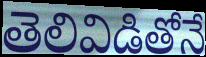
తెలివిడితోనే